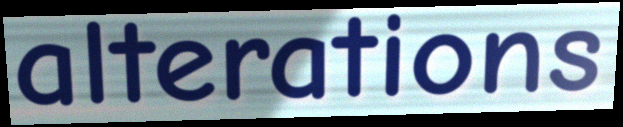
alterations